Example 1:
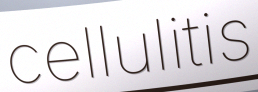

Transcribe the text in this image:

cellulitis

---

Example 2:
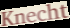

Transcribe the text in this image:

Knecht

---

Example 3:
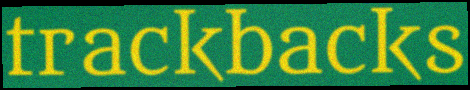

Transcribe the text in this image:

trackbacks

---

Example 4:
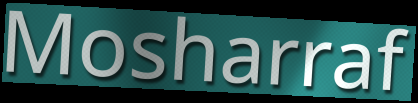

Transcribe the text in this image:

Mosharraf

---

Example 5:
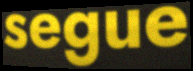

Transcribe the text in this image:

segue